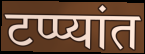
टप्प्यांत